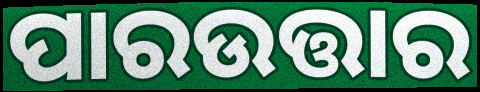
ପାରଉତ୍ତାର